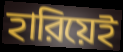
হারিয়েই